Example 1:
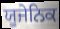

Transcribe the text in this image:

ਯੂਜੇਨਿਕ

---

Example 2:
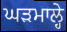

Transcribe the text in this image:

ਘੜਮਾਲ੍ਹੇ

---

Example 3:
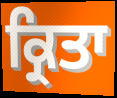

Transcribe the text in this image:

ਕ੍ਰਿਤਾ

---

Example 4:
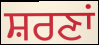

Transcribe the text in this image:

ਸ਼ਰਣਾਂ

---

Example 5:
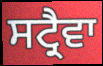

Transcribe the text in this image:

ਸਟ੍ਰੈਵਾ